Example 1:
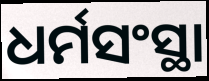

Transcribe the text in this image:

ଧର୍ମସଂସ୍ଥା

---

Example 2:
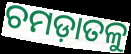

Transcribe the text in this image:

ଚମଡ଼ାତଳୁ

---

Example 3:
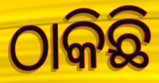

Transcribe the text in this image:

ଠାକିଛି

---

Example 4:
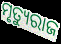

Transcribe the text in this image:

ମୃତ୍ୟୁରାଜ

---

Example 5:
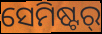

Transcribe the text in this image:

ସେମିଷ୍ଟର୍